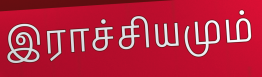
இராச்சியமும்